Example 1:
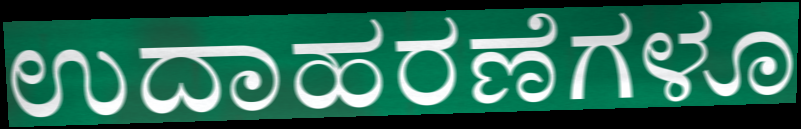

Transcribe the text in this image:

ಉದಾಹರಣೆಗಳೂ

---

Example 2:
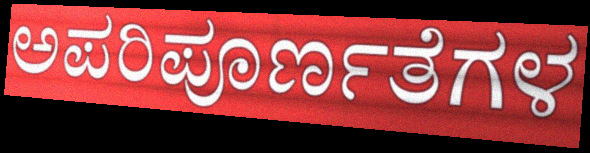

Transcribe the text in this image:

ಅಪರಿಪೂರ್ಣತೆಗಳ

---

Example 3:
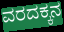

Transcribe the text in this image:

ವರದಕ್ಕನ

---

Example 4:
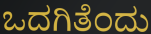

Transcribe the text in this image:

ಒದಗಿತೆಂದು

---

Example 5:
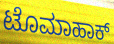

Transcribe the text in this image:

ಟೊಮಾಹಾಕ್